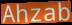
Ahzab